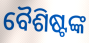
ବୈଶିଷ୍ଟଙ୍କ